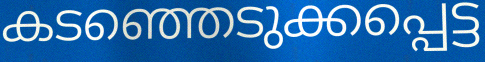
കടഞ്ഞെടുക്കപ്പെട്ട